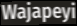
Wajapeyi